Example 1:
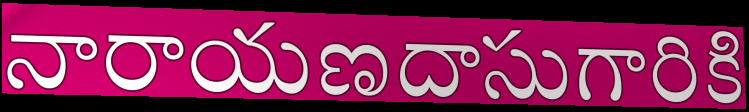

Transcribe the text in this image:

నారాయణదాసుగారికి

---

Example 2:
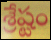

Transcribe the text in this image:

శ్రేష్టం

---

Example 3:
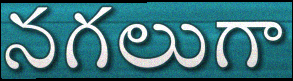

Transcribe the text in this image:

నగలుగా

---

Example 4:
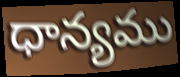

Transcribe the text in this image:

ధాన్యము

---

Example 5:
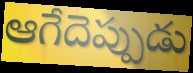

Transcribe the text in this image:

ఆగేదెప్పుడు